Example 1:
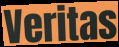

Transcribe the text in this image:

Veritas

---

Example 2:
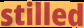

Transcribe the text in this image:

stilled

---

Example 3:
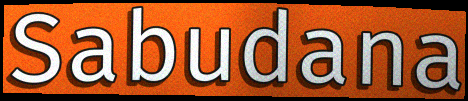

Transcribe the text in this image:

Sabudana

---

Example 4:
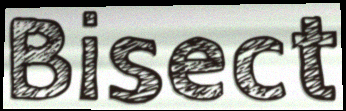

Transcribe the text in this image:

Bisect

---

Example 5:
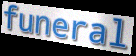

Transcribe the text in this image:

funeral